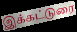
இக்கட்டுரை